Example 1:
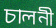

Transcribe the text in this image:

চালনী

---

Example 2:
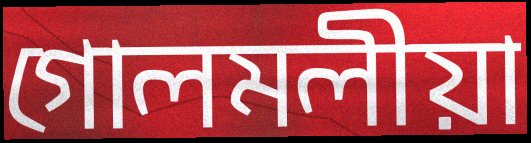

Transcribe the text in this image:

গোলমলীয়া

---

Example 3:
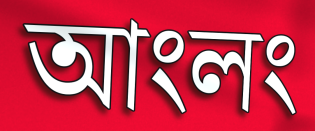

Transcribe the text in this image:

আংলং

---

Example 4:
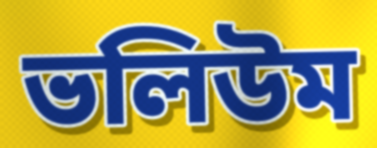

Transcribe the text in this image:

ভলিউম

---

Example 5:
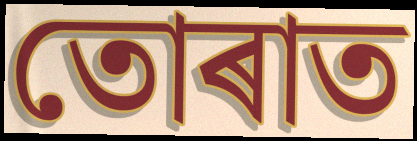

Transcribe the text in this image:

তোৰাত